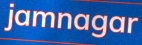
jamnagar